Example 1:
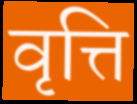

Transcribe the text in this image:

वृत्ति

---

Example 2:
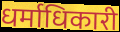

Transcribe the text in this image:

धर्माधिकारी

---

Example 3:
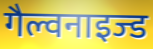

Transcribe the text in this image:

गैल्वनाइज्ड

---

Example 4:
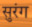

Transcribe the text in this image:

सुरंग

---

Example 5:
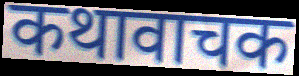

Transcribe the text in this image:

कथावाचक